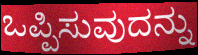
ಒಪ್ಪಿಸುವುದನ್ನು